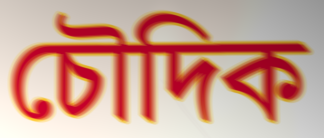
চৌদিক